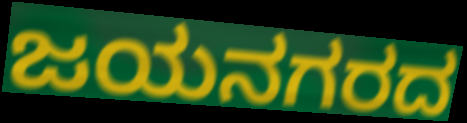
ಜಯನಗರದ